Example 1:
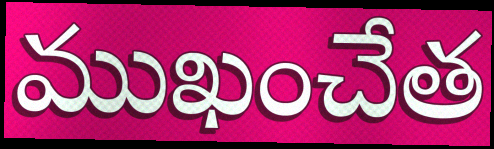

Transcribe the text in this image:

ముఖంచేత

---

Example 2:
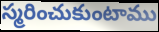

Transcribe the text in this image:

స్మరించుకుంటాము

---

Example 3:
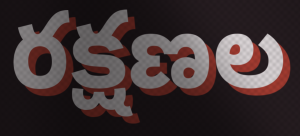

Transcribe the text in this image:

రక్షణల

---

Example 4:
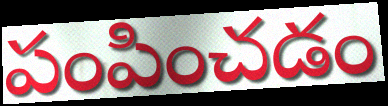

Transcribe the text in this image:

పంపించడం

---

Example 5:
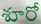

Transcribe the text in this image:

శూరో